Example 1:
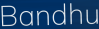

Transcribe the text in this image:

Bandhu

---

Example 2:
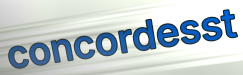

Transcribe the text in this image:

concordesst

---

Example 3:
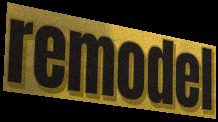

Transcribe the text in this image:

remodel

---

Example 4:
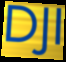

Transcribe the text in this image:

DJI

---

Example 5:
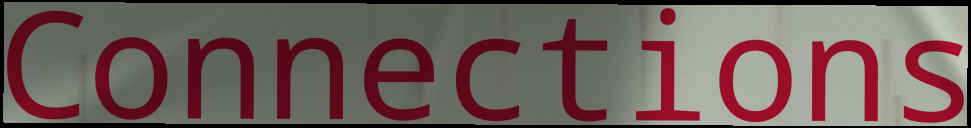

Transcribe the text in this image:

Connections